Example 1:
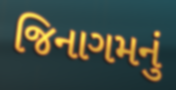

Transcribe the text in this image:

જિનાગમનું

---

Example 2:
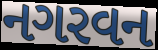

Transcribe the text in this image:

નગરવન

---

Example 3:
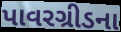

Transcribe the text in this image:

પાવરગ્રીડના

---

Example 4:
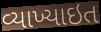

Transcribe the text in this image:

વ્યાખ્યાઇત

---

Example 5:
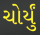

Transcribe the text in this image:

ચોર્યું